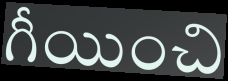
గీయించి